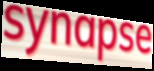
synapse